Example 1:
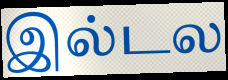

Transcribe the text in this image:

இல்டல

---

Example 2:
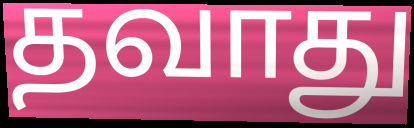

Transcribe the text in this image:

தவாது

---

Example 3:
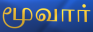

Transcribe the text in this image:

மூவார்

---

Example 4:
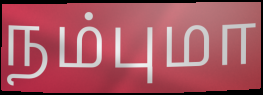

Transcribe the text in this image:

நம்புமா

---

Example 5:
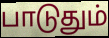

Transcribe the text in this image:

பாடுதும்